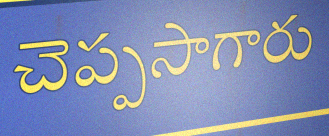
చెప్పసాగారు